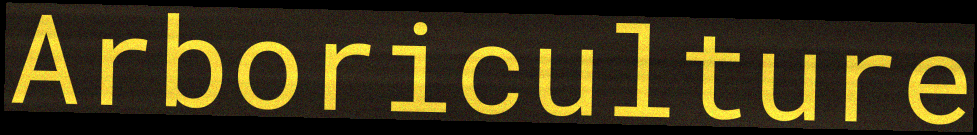
Arboriculture